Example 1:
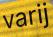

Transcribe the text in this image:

varij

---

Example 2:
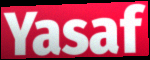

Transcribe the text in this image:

Yasaf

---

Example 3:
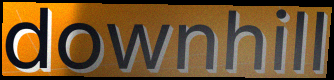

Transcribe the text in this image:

downhill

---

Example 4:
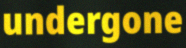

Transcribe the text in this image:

undergone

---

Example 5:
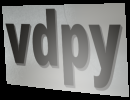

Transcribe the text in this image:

vdpy